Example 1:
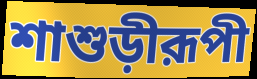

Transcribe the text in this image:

শাশুড়ীরূপী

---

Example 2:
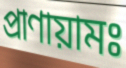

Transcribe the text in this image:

প্রাণায়ামঃ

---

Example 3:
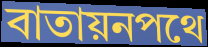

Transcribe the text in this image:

বাতায়নপথে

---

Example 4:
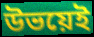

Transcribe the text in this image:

উভয়েই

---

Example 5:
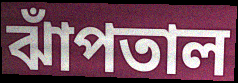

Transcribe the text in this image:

ঝাঁপতাল